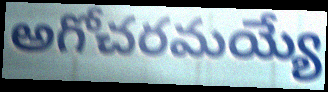
అగోచరమయ్యే